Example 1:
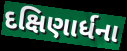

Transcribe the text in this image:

દક્ષિણાર્ધના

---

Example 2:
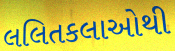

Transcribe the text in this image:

લલિતકલાઓથી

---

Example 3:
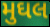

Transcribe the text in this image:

મુઘલ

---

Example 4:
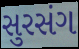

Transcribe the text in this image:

સુરસંગ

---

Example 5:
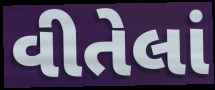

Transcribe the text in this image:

વીતેલાં